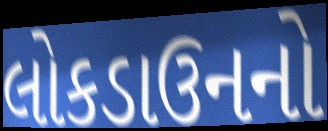
લોકડાઉનનો